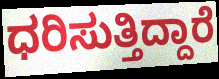
ಧರಿಸುತ್ತಿದ್ದಾರೆ